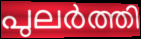
പുലർത്തി